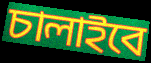
চালাইবে